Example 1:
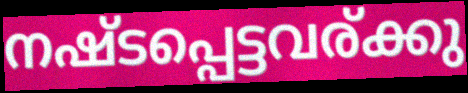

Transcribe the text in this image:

നഷ്ടപ്പെട്ടവര്ക്കു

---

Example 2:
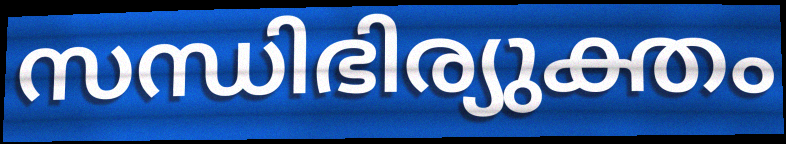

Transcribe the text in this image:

സന്ധിഭിര്യുക്തം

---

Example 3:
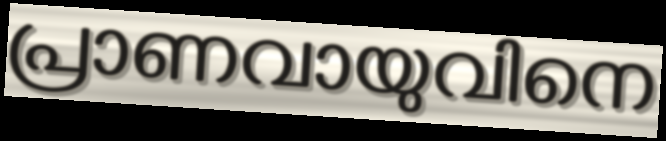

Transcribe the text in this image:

പ്രാണവായുവിനെ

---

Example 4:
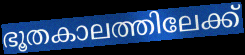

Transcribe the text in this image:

ഭൂതകാലത്തിലേക്ക്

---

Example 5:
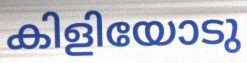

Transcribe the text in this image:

കിളിയോടു